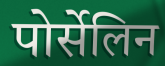
पोर्सेलिन